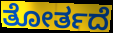
ತೋರ್ತದೆ